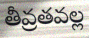
తీవ్రతవల్ల